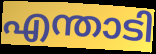
എന്താടി